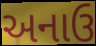
અનાઉ